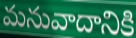
మనువాదానికి